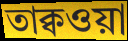
তাক্বওয়া